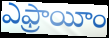
ఎఫ్రాయీం